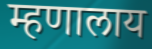
म्हणालाय